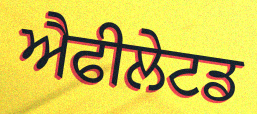
ਐਫੀਲੇਟਡ